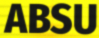
ABSU